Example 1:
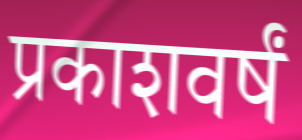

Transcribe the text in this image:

प्रकाशवर्षं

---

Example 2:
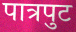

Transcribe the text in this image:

पात्रपुट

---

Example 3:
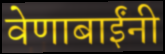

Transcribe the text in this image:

वेणाबाईंनी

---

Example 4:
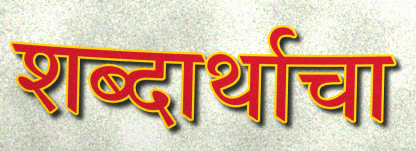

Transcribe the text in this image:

शब्दार्थाचा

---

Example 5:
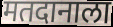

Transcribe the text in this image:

मतदानाला